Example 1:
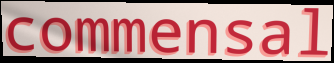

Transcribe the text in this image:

commensal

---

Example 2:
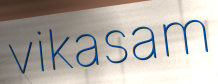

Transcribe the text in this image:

vikasam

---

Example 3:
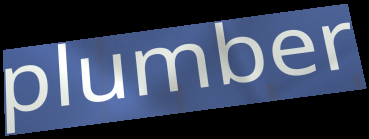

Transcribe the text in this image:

plumber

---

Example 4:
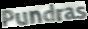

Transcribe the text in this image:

Pundras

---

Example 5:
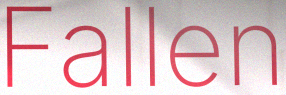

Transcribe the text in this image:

Fallen